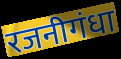
रजनीगंधा